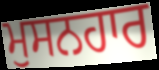
ਮੁਸਨਹਾਰ